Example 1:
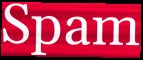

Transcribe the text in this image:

Spam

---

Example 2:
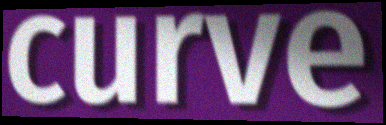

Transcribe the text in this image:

curve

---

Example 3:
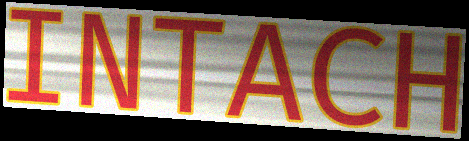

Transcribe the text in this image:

INTACH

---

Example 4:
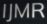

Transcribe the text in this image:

IJMR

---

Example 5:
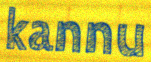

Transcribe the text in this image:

kannu